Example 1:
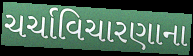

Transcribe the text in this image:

ચર્ચાવિચારણાના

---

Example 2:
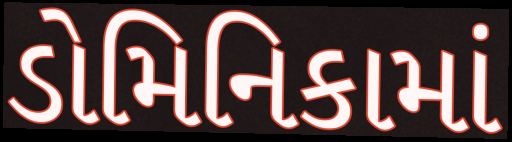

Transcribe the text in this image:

ડોમિનિકામાં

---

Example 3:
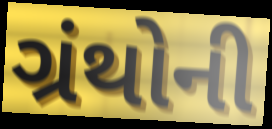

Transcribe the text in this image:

ગ્રંથોની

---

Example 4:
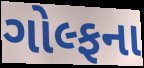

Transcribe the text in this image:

ગોલ્ફના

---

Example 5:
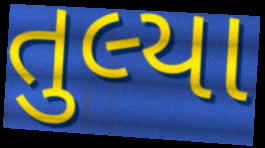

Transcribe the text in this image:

તુલ્યા